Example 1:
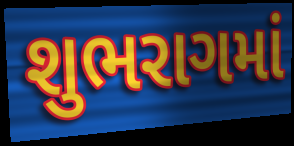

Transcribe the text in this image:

શુભરાગમાં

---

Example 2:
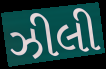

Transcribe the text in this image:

ઝીલી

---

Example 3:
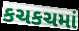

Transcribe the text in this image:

કચકચમાં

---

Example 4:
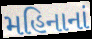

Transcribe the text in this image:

મહિનાનાં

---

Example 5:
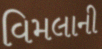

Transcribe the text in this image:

વિમલાની